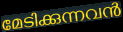
മേടിക്കുന്നവൻ